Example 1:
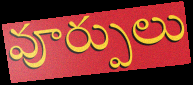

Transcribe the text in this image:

వూర్పులు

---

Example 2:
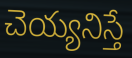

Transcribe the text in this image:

చెయ్యనిస్తే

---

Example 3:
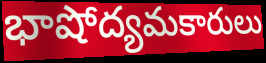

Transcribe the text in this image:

భాషోద్యమకారులు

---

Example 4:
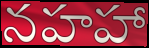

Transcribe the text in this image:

నహహా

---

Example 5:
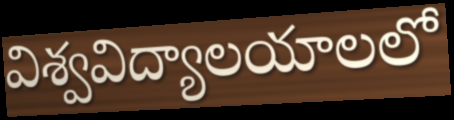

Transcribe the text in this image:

విశ్వవిద్యాలయాలలో